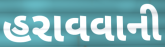
હરાવવાની